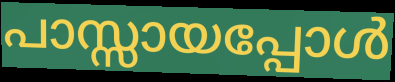
പാസ്സായപ്പോൾ